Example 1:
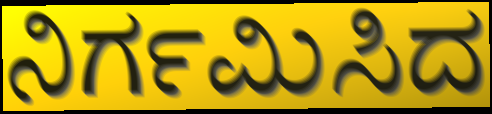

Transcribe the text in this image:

ನಿರ್ಗಮಿಸಿದ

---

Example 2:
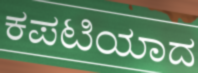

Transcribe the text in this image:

ಕಪಟಿಯಾದ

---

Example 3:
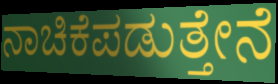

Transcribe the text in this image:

ನಾಚಿಕೆಪಡುತ್ತೇನೆ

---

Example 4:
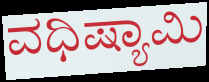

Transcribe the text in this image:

ವಧಿಷ್ಯಾಮಿ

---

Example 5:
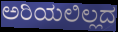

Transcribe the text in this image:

ಅರಿಯಲಿಲ್ಲದ